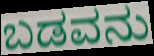
ಬಡವನು